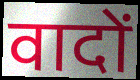
वादों